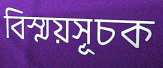
বিস্ময়সূচক